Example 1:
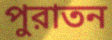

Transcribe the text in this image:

পুরাতন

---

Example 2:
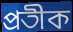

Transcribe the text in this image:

প্রতীক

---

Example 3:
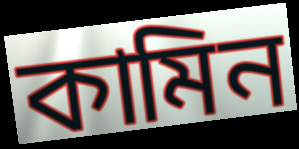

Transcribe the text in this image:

কামিন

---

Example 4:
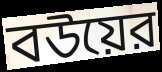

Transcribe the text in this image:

বউয়ের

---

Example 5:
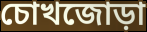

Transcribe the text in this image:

চোখজোড়া